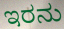
ಇರನು